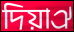
দিয়াঐ